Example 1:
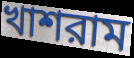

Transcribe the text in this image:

খাশরাম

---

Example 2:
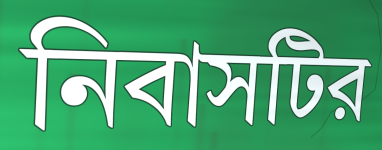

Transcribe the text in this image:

নিবাসটির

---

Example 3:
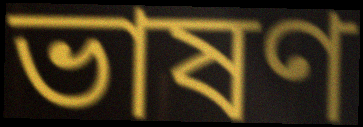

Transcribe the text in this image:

ভাষণ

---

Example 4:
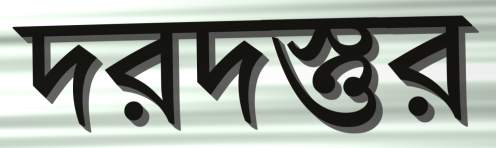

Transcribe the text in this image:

দরদস্তুর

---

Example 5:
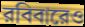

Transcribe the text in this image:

রবিবারেও